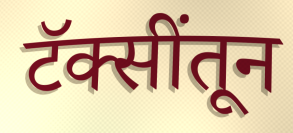
टॅक्सींतून